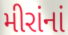
મીરાંનાં